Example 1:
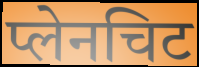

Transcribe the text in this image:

प्लेनचिट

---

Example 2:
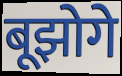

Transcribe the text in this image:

बूझोगे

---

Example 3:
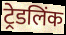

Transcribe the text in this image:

ट्रेडलिंक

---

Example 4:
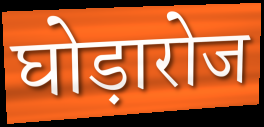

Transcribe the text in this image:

घोड़ारोज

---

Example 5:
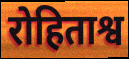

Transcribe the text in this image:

रोहिताश्व